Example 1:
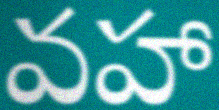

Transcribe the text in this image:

వహా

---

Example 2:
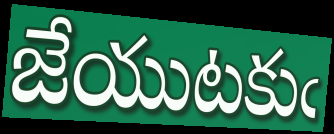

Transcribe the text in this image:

జేయుటకుఁ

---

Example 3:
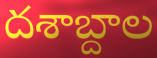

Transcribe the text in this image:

దశాబ్దాల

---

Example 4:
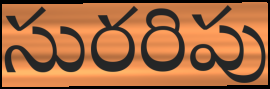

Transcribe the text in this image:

సురరిపు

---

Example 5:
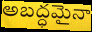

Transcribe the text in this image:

అబద్ధమైనా